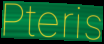
Pteris